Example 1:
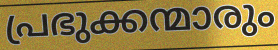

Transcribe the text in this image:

പ്രഭുക്കന്മാരും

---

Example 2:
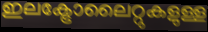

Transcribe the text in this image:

ഇലക്ട്രോലൈറ്റുകളുള്ള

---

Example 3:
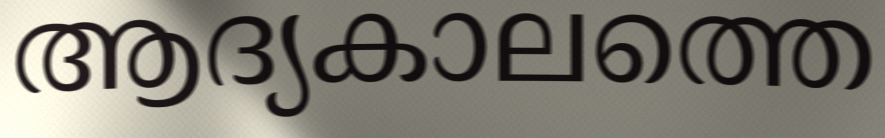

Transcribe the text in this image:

ആദ്യകാലത്തെ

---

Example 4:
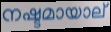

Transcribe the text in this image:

നഷ്ടമായാല്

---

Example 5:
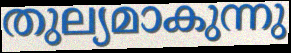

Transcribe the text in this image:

തുല്യമാകുന്നു